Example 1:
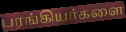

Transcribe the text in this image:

பரங்கியர்களை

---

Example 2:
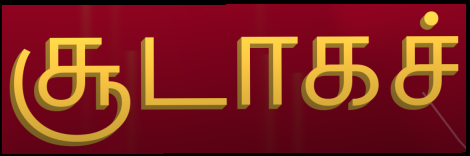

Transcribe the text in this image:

சூடாகச்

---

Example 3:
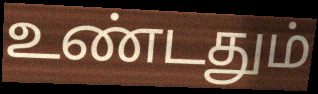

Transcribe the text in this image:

உண்டதும்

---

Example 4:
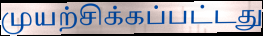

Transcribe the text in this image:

முயற்சிக்கப்பட்டது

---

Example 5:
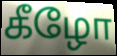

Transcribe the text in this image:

கீழோ